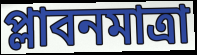
প্লাবনমাত্রা